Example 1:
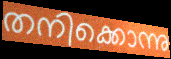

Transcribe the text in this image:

തനിക്കൊന്നു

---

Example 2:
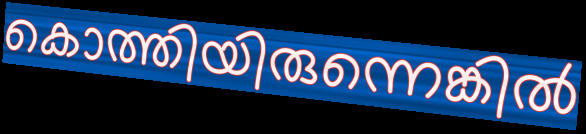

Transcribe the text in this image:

കൊത്തിയിരുന്നെങ്കിൽ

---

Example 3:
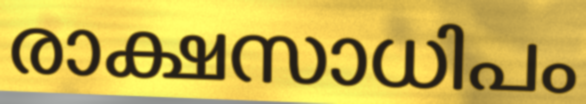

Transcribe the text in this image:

രാക്ഷസാധിപം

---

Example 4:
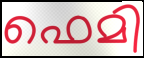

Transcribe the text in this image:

ഫെമി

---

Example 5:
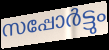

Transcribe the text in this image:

സപ്പോർട്ടും